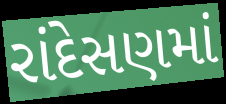
રાંદેસણમાં